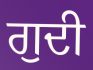
ਗੁਦੀ